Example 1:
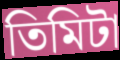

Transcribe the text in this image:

তিমিটা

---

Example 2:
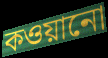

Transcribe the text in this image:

কওয়ানো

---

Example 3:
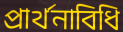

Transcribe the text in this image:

প্রার্থনাবিধি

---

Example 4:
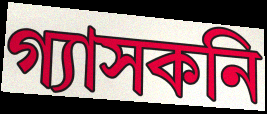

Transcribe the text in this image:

গ্যাসকনি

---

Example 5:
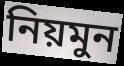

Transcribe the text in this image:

নিয়মুন